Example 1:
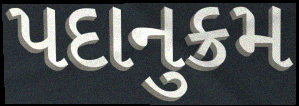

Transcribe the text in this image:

પદાનુક્રમ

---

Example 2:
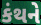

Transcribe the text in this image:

કંથને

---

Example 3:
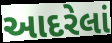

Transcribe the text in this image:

આદરેલાં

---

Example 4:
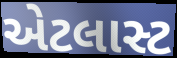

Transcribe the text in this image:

એટલાસ્ટ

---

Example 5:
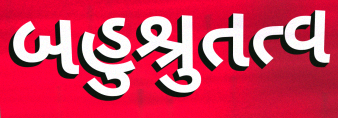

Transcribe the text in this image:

બહુશ્રુતત્વ